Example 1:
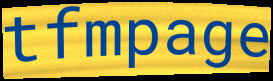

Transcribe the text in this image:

tfmpage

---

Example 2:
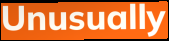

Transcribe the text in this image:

Unusually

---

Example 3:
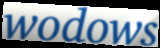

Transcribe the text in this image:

wodows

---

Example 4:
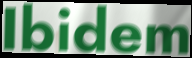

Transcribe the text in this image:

Ibidem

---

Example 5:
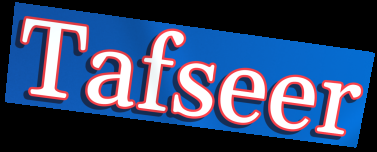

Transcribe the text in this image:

Tafseer